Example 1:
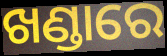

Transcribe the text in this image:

ଖଣ୍ଡାରେ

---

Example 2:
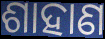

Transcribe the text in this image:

ଶାହାଣ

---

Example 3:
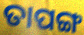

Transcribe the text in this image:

ତାପଙ୍ଗ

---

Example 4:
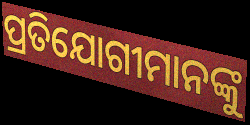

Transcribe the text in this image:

ପ୍ରତିଯୋଗୀମାନଙ୍କୁ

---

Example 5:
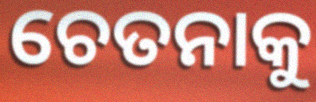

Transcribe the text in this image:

ଚେତନାକୁ